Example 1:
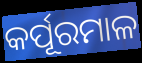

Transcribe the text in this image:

କର୍ପୂରମାଳ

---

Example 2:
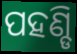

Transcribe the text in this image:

ପହଣ୍ଡି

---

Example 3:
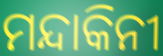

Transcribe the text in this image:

ମନ୍ଦାକିନୀ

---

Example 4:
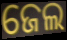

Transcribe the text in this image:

ଜେଲ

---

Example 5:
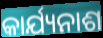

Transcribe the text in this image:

କାର୍ଯ୍ୟନାଶ